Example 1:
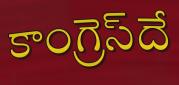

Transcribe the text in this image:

కాంగ్రెస్‌దే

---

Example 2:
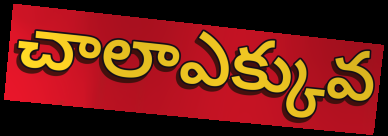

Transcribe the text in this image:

చాలాఎక్కువ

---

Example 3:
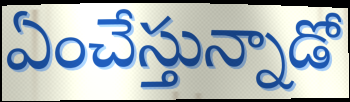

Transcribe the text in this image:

ఏంచేస్తున్నాడో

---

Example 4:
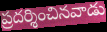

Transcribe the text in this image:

ప్రదర్శించినవాడు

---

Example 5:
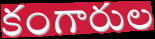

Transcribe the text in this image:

కంగారుల